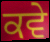
ਕਵੇ